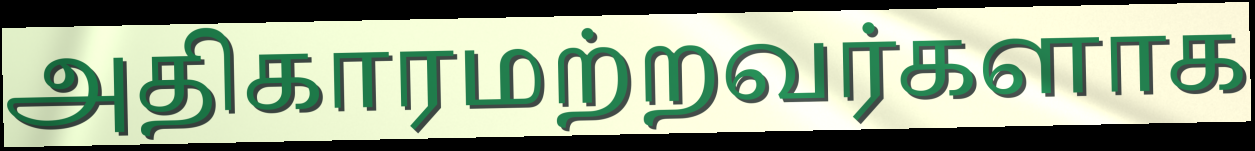
அதிகாரமற்றவர்களாக